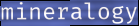
mineralogy